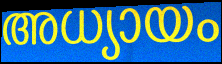
അധ്യായം